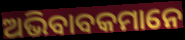
ଅଭିବାବକମାନେ